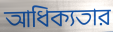
আধিক্যতার